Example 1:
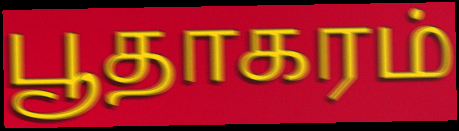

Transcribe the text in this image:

பூதாகரம்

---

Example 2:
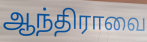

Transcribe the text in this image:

ஆந்திராவை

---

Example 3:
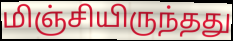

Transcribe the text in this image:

மிஞ்சியிருந்தது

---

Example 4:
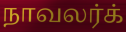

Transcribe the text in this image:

நாவலர்க்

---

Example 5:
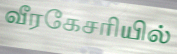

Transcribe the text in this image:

வீரகேசரியில்